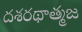
దశరథాత్మజ